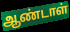
ஆண்டாள்